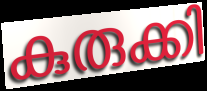
കുരുക്കി